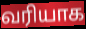
வரியாக